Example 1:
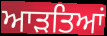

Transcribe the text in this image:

ਆੜਤਿਆਂ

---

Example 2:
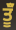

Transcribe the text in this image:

ਤੂੰਁ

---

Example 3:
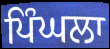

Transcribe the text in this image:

ਪਿੰਘਲਾ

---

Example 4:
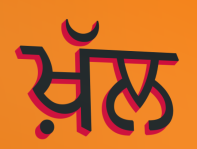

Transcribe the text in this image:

ਖ਼ੱਲ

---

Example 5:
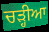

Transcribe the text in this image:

ਚੜ੍ਹੀਆ